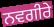
ਨਵਗੀਰੇ